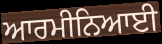
ਆਰਮੀਨਿਆਈ